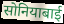
सोनियाबाई